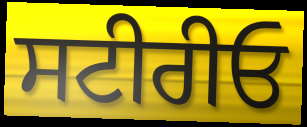
ਸਟੀਰੀਓ